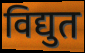
विद्युत